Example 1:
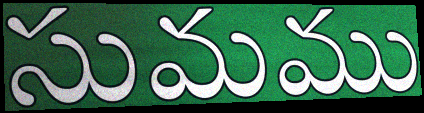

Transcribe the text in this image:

సుమము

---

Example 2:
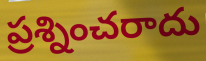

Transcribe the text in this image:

ప్రశ్నించరాదు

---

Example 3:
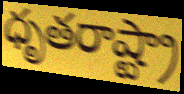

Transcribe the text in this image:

ధృతరాష్ట్రా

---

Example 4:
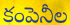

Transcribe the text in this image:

కంపెనీల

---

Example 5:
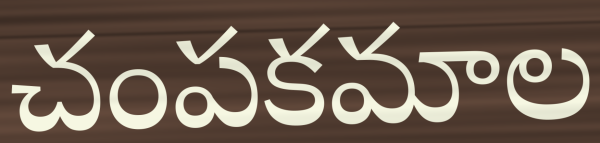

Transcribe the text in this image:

చంపకమాల